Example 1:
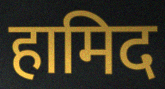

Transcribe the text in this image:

हामिद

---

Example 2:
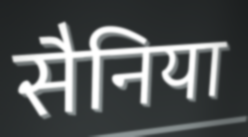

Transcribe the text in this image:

सैनिया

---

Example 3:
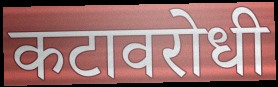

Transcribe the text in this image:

कटावरोधी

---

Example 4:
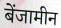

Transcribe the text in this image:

बेंजामीन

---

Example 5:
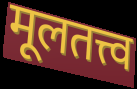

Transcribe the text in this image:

मूलतत्त्व